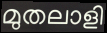
മുതലാളി